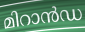
മിറാൻഡ